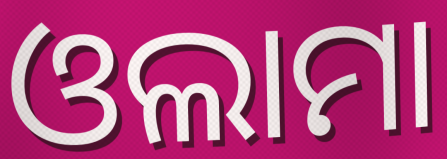
ଓଲାମା